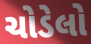
ચોડેલો